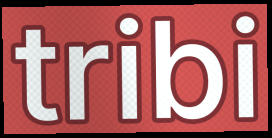
tribi